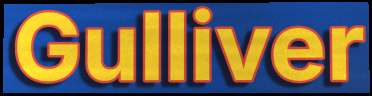
Gulliver